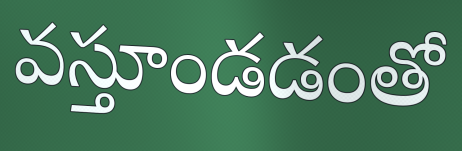
వస్తూండడంతో